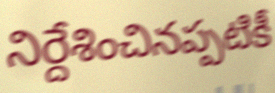
నిర్దేశించినప్పటికీ